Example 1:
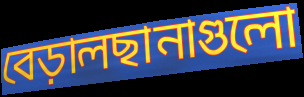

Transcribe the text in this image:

বেড়ালছানাগুলো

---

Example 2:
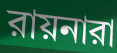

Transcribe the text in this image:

রায়নারা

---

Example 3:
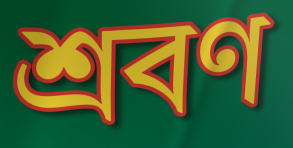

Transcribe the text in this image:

শ্রবণ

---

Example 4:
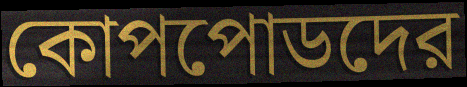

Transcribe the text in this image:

কোপপোডদের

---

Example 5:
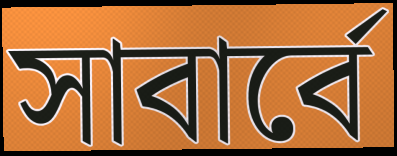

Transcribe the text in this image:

সাবার্বে